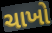
ચાખો